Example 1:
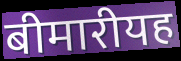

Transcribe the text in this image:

बीमारीयह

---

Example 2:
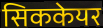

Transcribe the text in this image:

सिककेयर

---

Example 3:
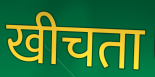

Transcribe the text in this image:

खीचता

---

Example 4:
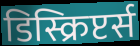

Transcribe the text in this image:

डिस्क्रिप्टर्स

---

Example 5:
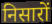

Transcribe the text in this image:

निसारों